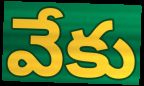
వేకు